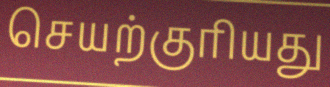
செயற்குரியது